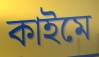
কাইমে